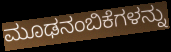
ಮೂಢನಂಬಿಕೆಗಳನ್ನು